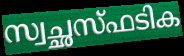
സ്വച്ഛസ്ഫടിക